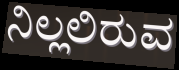
ನಿಲ್ಲಲಿರುವ